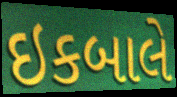
ઇકબાલે